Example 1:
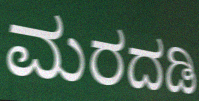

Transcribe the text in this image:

ಮರದಡಿ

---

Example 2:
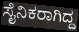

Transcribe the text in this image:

ಸೈನಿಕರಾಗಿದ್ದ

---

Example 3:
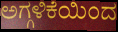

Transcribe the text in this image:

ಅಗ್ಗಳಿಕೆಯಿಂದ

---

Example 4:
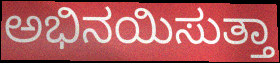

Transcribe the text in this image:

ಅಭಿನಯಿಸುತ್ತಾ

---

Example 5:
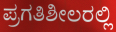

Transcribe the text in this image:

ಪ್ರಗತಿಶೀಲರಲ್ಲಿ